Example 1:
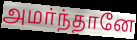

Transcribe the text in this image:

அமர்ந்தானே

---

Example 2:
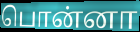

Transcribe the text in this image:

பொன்னா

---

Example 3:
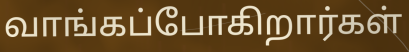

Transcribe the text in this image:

வாங்கப்போகிறார்கள்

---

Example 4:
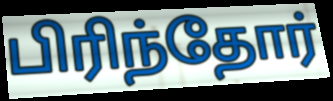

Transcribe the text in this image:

பிரிந்தோர்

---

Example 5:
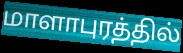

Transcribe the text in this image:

மாளாபுரத்தில்